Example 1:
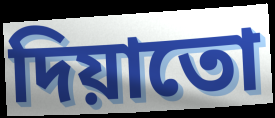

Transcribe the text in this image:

দিয়াতো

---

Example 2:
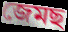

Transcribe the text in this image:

জেমছ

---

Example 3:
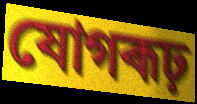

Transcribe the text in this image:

যোগৰূঢ়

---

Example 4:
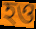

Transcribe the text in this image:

হও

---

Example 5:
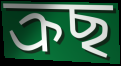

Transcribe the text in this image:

ক্ৰছ